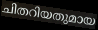
ചിതറിയതുമായ